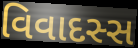
વિવાદસ્સ